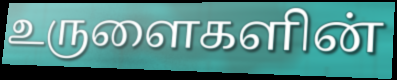
உருளைகளின்